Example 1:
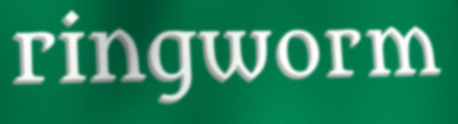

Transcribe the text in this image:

ringworm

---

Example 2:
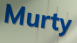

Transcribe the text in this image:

Murty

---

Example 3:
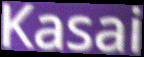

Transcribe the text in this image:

Kasai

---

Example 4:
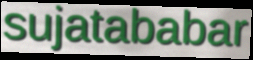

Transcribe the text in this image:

sujatababar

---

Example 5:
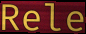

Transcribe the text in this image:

Rele